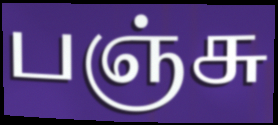
பஞ்சு